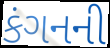
કંગનની